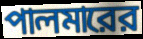
পালমারের